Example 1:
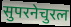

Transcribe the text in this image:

सुपरनेचुरल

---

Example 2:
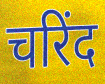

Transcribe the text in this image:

चरिंद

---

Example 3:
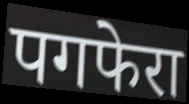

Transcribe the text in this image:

पगफेरा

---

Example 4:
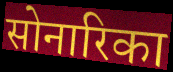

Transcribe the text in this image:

सोनारिका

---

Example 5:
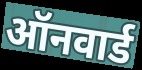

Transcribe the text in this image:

ऑनवार्ड